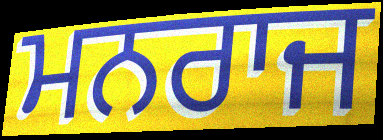
ਮਨਰਾਜ